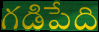
గడిపేది